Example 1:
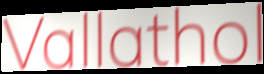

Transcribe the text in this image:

Vallathol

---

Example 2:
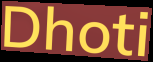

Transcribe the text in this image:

Dhoti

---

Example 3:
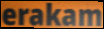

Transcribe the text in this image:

erakam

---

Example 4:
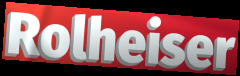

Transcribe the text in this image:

Rolheiser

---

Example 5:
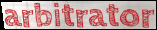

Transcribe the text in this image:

arbitrator